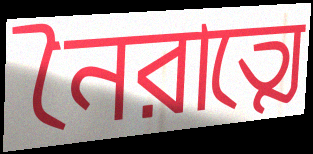
নৈরাত্মে